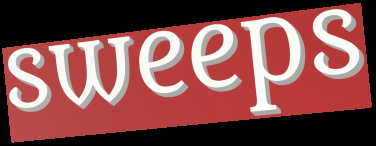
sweeps